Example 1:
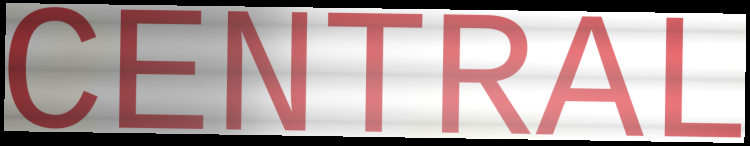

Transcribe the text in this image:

CENTRAL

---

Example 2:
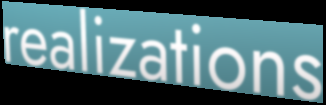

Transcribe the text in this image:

realizations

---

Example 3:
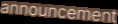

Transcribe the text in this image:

announcement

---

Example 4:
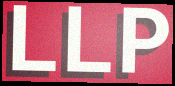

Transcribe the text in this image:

LLP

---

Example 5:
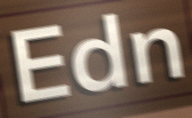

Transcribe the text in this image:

Edn